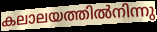
കലാലയത്തിൽനിന്നു